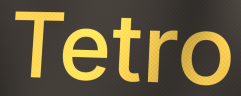
Tetro